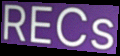
RECs